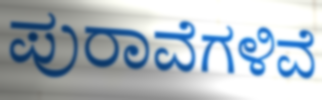
ಪುರಾವೆಗಳಿವೆ